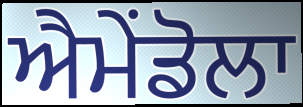
ਐਮੇਂਡੋਲਾ